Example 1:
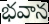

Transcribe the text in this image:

భవాన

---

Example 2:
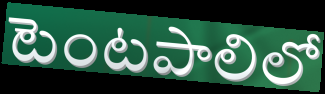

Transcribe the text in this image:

టెంటపాలిలో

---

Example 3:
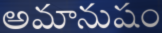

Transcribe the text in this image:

అమానుషం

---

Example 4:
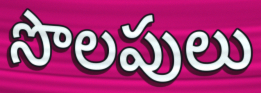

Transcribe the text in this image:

సొలపులు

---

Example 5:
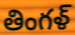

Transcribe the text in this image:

తింగళ్